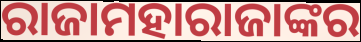
ରାଜାମହାରାଜାଙ୍କର